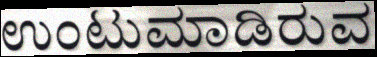
ಉಂಟುಮಾಡಿರುವ